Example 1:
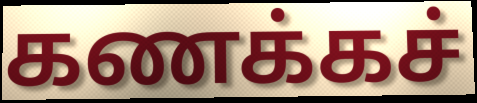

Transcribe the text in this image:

கணக்கச்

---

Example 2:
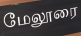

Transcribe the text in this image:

மேலூரை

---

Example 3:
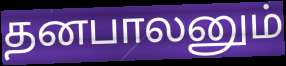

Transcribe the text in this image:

தனபாலனும்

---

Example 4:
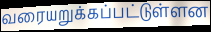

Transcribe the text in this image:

வரையறுக்கப்பட்டுள்ளன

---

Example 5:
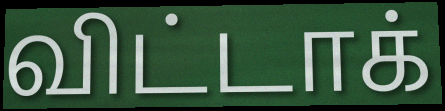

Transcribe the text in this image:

விட்டாக்